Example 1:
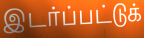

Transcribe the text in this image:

இடர்ப்பட்டுக்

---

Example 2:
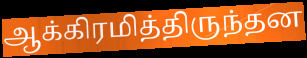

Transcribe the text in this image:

ஆக்கிரமித்திருந்தன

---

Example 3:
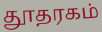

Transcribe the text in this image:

தூதரகம்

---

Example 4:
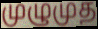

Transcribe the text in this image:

முழுமுத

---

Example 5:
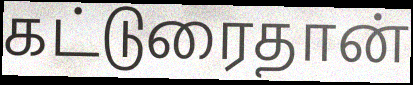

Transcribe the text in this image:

கட்டுரைதான்